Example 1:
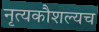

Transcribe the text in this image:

नृत्यकौशल्यच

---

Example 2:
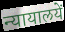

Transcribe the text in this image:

न्यायालयें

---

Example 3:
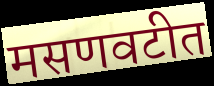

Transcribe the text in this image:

मसणवटीत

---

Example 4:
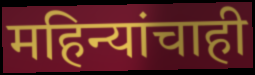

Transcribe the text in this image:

महिन्यांचाही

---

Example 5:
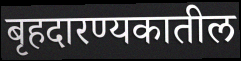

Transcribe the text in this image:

बृहदारण्यकातील